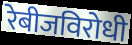
रेबीजविरोधी